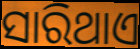
ସାରିଥାଏ